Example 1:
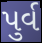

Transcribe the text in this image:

પુર્વ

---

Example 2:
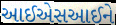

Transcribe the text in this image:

આઈએસઆઈને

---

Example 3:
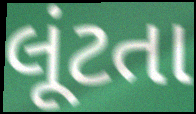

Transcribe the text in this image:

લૂંટતા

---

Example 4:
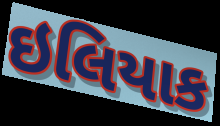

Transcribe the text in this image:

ઇલિયાક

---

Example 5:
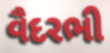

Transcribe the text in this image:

વૈદરભી